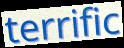
terrific